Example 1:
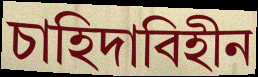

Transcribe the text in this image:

চাহিদাবিহীন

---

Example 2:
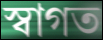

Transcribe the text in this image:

স্বাগত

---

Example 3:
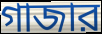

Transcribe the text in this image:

গাজার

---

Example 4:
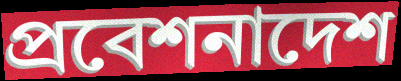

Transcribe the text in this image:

প্রবেশনাদেশ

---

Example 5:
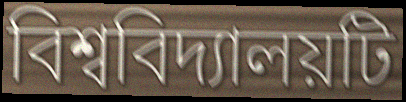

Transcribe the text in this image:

বিশ্ববিদ্যালয়টি